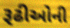
રૂઢીઓની